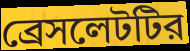
ব্রেসলেটটির